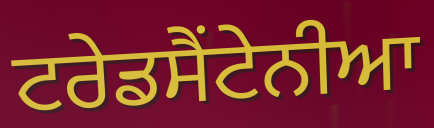
ਟਰੇਡਸੈਂਟੇਨੀਆ